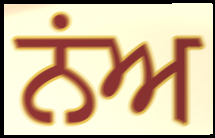
ਨਂਅ